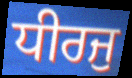
ਧੀਰਜੁ